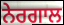
ਨੇਰਗਾਲ